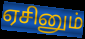
ஏசினும்